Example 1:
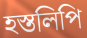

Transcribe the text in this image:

হস্তলিপি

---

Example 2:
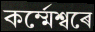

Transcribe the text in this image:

কৰ্ম্মেশ্বৰে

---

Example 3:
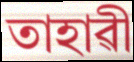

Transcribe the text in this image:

তাহাৱী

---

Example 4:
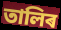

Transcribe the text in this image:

তালিৰ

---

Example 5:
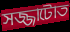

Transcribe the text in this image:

সজ্জাটোত